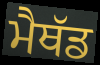
ਮੈਥੱਡ